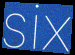
six